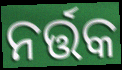
ନର୍ତ୍ତକ